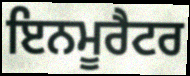
ਇਨਮੂਰੈਟਰ